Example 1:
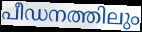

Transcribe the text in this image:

പീഡനത്തിലും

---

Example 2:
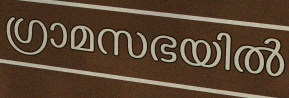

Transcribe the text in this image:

ഗ്രാമസഭയിൽ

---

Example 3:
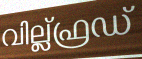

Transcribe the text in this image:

വില്ല്ഫ്രഡ്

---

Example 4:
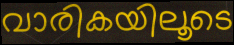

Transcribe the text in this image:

വാരികയിലൂടെ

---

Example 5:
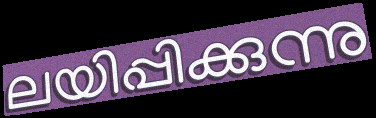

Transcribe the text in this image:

ലയിപ്പിക്കുന്നു